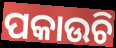
ପକାଉଚି